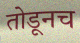
तोडूनच